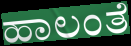
ಹಾಲಂತೆ